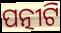
ପତ୍ନୀଟି